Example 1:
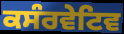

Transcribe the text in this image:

ਕਸੰਰਵੇਟਿਵ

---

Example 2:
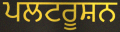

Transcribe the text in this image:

ਪਲਟਰੂਸ਼ਨ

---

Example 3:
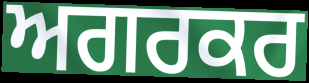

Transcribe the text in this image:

ਅਗਰਕਰ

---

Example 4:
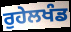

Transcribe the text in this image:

ਰੁਹੇਲਖੰਡ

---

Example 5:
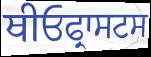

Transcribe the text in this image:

ਥੀਓਫ੍ਰਾਸਟਸ